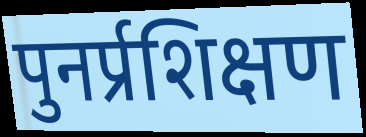
पुनर्प्रशिक्षण